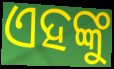
ଏହଙ୍କୁ